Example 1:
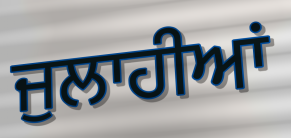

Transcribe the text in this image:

ਜੁਲਾਹੀਆਂ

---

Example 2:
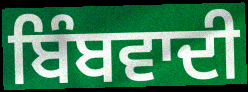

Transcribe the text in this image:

ਬਿੰਬਵਾਦੀ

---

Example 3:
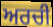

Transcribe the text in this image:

ਅਰਚੀ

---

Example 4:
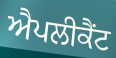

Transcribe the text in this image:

ਐਪਲੀਕੈਂਟ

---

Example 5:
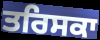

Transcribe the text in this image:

ਤਰਿਸਕਾ